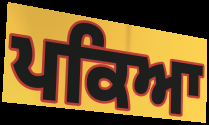
ਪਕਿਆ